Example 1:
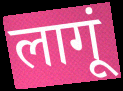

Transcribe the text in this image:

लागूं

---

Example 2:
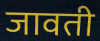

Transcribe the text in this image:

जावती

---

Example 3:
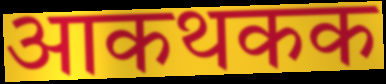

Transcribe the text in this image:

आकथकक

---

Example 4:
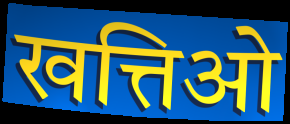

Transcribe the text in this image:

खत्तिओ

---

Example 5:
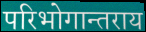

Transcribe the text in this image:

परिभोगान्तराय